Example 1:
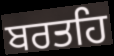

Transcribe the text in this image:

ਬਰਤਹਿ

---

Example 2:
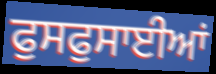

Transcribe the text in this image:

ਫੁਸਫੁਸਾਈਆਂ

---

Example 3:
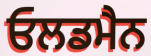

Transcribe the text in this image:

ਓਲਡਮੈਨ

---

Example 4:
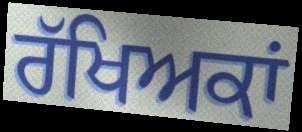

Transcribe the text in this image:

ਰੱਖਿਅਕਾਂ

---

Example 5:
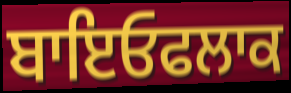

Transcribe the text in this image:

ਬਾਇਓਫਲਾਕ